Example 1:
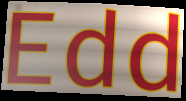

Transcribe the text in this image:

Edd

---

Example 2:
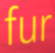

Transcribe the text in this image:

fur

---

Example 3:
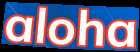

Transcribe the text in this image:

aloha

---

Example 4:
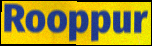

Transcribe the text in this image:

Rooppur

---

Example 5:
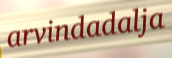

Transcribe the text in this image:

arvindadalja